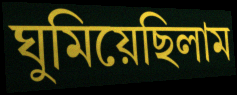
ঘুমিয়েছিলাম